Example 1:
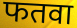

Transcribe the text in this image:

फतवा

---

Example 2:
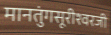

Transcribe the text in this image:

मानतुंगसूरीश्वरजी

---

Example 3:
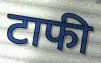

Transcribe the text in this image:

टाफी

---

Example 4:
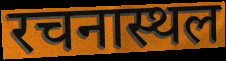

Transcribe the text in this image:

रचनास्थल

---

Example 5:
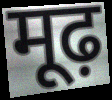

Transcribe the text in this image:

मूढ़